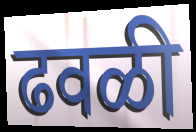
ढवळी